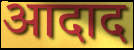
आदाद